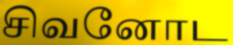
சிவனோட